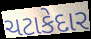
ચટાકેદાર